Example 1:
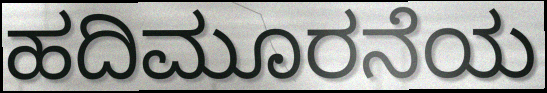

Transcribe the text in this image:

ಹದಿಮೂರನೆಯ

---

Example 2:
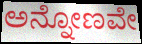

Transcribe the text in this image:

ಅನ್ನೋಣವೇ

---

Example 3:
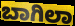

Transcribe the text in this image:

ಬಾಗಿಲಾ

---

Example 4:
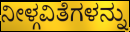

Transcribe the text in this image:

ನೀಳ್ಗವಿತೆಗಳನ್ನು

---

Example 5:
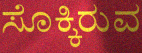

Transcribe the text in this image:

ಸೊಕ್ಕಿರುವ